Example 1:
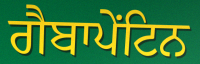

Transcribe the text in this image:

ਗੈਬਾਪੇਂਟਿਨ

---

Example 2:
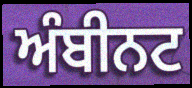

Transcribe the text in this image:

ਅੰਬੀਨਟ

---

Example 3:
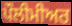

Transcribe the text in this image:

ਪੌਲੀਮੀਅਰ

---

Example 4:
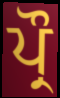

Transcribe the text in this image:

ਪ੍ਰੌ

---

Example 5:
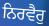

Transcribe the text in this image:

ਨਿਰਵੈਰੁ